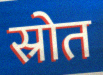
स्रोत